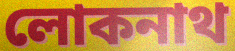
লোকনাথ